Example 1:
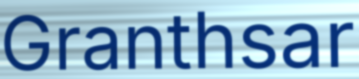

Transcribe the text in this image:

Granthsar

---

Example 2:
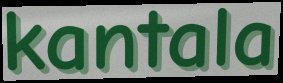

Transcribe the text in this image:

kantala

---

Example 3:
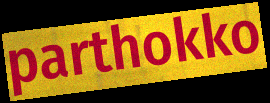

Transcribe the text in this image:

parthokko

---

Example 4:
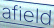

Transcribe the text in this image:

afield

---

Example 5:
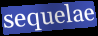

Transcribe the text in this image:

sequelae